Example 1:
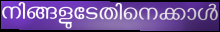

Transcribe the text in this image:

നിങ്ങളുടേതിനെക്കാൾ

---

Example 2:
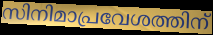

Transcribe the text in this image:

സിനിമാപ്രവേശത്തിന്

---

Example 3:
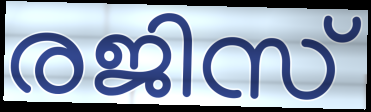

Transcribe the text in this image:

രജിസ്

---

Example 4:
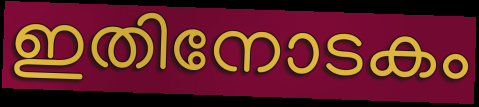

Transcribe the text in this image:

ഇതിനോടകം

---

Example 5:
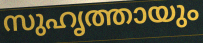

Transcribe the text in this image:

സുഹൃത്തായും